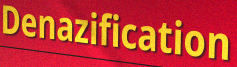
Denazification